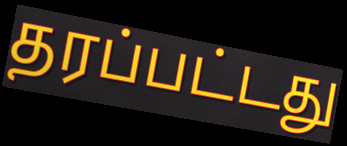
தரப்பட்டது